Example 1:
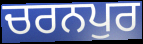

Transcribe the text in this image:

ਚਰਨਪੁਰ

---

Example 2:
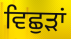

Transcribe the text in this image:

ਵਿਛੁੜਾਂ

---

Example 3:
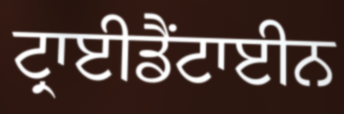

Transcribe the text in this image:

ਟ੍ਰਾਈਡੈਂਟਾਈਨ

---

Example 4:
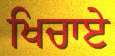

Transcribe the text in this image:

ਖਿਚਾਏ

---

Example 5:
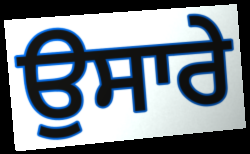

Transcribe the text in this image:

ਉਸਾਰੇ